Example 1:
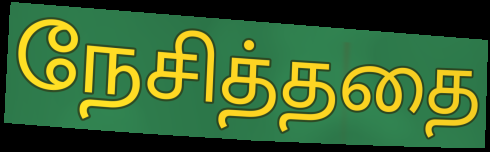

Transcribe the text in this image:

நேசித்ததை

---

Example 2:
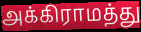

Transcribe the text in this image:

அக்கிராமத்து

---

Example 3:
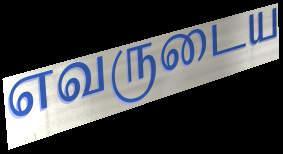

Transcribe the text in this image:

எவருடைய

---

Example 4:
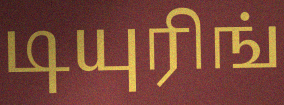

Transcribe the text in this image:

டியுரிங்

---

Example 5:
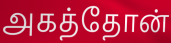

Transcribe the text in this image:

அகத்தோன்